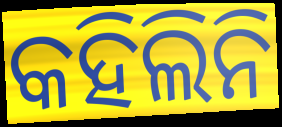
କହିଲିନି